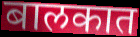
बालकात